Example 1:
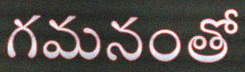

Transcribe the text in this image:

గమనంతో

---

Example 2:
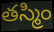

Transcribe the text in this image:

తస్మిం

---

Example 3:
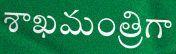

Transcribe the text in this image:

శాఖమంత్రిగా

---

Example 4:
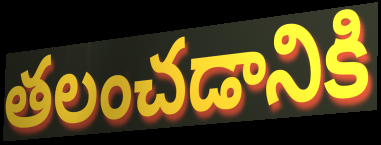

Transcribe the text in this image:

తలంచడానికి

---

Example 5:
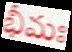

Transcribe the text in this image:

భీమః